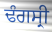
ਢੰਗਸ੍ਰੀ